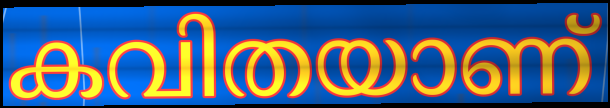
കവിതയാണ്